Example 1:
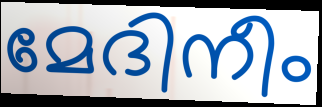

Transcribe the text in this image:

മേദിനീം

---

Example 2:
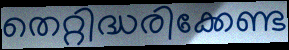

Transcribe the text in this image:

തെറ്റിദ്ധരിക്കേണ്ട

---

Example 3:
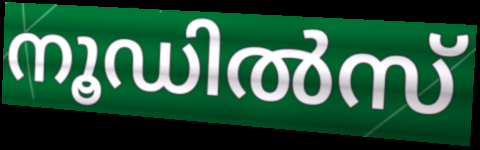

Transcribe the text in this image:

നൂഡിൽസ്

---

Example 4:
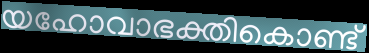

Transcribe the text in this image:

യഹോവാഭക്തികൊണ്ട്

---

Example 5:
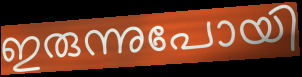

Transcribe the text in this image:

ഇരുന്നുപോയി